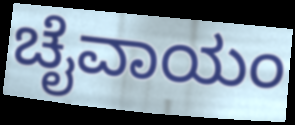
ಚೈವಾಯಂ